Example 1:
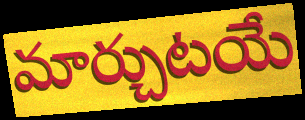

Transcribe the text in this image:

మార్చుటయే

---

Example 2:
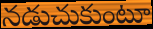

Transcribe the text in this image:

నడుచుకుంటూ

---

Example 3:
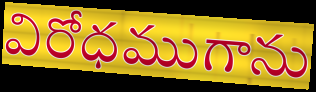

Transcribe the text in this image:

విరోధముగాను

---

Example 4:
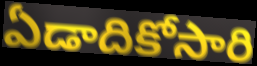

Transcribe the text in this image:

ఏడాదికోసారి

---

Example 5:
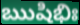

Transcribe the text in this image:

ఋషిభిః